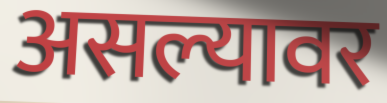
असल्यावर